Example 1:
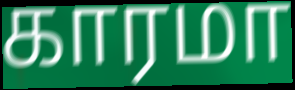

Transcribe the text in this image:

காரமா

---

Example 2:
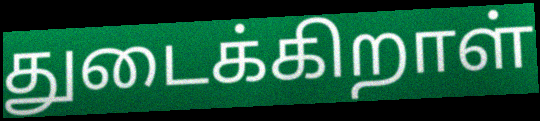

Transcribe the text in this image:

துடைக்கிறாள்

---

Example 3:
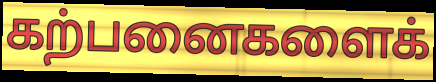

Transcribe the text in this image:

கற்பனைகளைக்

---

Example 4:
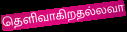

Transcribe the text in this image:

தெளிவாகிறதல்லவா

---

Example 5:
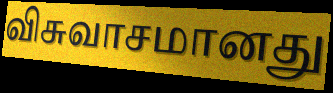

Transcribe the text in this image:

விசுவாசமானது